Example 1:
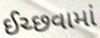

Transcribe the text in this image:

ઈચ્છવામાં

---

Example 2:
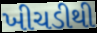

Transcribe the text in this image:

ખીચડીથી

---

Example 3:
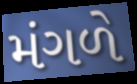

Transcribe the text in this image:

મંગળે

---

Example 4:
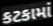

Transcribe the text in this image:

કટકામાં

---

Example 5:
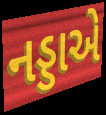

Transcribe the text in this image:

નડ્ડાએ